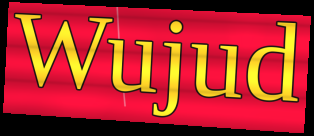
Wujud